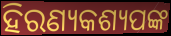
ହିରଣ୍ୟକଶ୍ୟପଙ୍କ